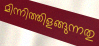
മിന്നിത്തിളങ്ങുന്നതു